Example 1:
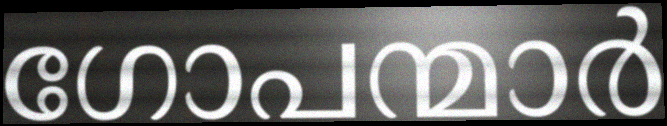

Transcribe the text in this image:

ഗോപന്മാർ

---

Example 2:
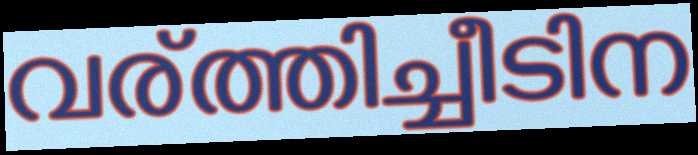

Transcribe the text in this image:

വര്ത്തിച്ചീടിന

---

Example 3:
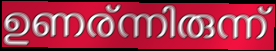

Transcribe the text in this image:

ഉണര്ന്നിരുന്ന്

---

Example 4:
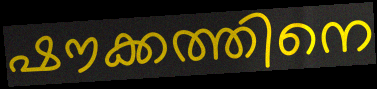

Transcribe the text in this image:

ഷൗക്കത്തിനെ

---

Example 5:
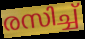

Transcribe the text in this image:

രസിച്ച്